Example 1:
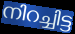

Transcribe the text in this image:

നിറച്ചിട്ട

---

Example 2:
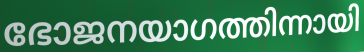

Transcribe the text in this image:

ഭോജനയാഗത്തിന്നായി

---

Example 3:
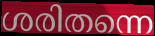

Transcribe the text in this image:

ശരിതന്നെ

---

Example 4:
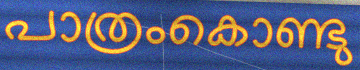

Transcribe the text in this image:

പാത്രംകൊണ്ടു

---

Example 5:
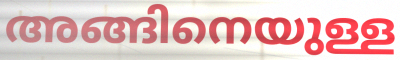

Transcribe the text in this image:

അങ്ങിനെയുള്ള